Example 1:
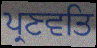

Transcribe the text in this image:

ਪ੍ਰਣਵਤਿ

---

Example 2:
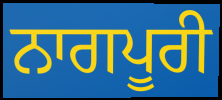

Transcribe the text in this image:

ਨਾਗਪੂਰੀ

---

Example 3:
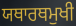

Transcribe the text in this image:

ਯਥਾਰਥਮੁਖੀ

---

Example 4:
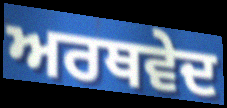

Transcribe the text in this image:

ਅਰਥਵੇਦ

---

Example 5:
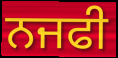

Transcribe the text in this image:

ਨਜਫੀ